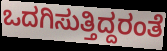
ಒದಗಿಸುತ್ತಿದ್ದರಂತೆ